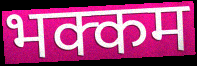
भक्‍कम